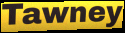
Tawney